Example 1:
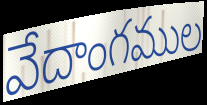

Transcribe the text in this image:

వేదాంగముల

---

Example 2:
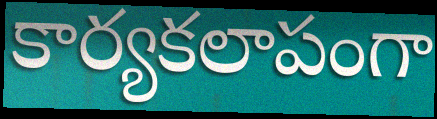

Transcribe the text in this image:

కార్యకలాపంగా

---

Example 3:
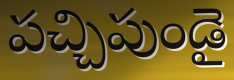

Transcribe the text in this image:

పచ్చిపుండై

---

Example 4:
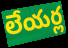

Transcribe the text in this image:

లేయర్ల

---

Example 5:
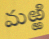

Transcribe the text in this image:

మఱ్ఱి